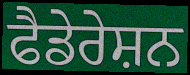
ਫੈਡੇਰੇਸ਼ਨ